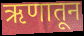
ऋणातून